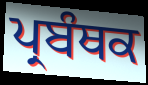
ਪ੍ਰਬੰਥਕ